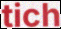
tich